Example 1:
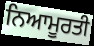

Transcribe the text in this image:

ਨਿਆਮੂਰਤੀ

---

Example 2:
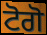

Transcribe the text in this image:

ਟੋਗੋ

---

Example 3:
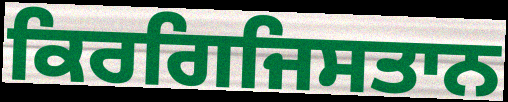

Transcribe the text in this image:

ਕਿਰਗਿਜਿਸਤਾਨ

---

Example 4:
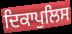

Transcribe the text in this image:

ਦਿਕਾਪੁਲਿਸ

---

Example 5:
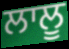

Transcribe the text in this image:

ਲਾਲੂ